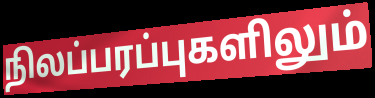
நிலப்பரப்புகளிலும்